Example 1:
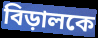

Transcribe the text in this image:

বিড়ালকে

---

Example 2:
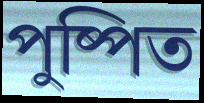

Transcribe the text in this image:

পুষ্পিত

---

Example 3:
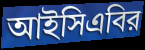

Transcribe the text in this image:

আইসিএবির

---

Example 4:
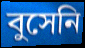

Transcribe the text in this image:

বুসেনি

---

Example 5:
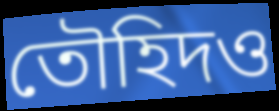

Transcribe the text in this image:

তৌহিদও